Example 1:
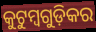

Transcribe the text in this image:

କୁଟୁମ୍ବଗୁଡ଼ିକର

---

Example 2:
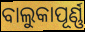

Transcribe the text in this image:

ବାଲୁକାପୂର୍ଣ୍ଣ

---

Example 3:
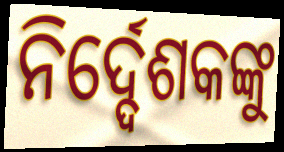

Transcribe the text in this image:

ନିର୍ଦ୍ଦେଶକଙ୍କୁ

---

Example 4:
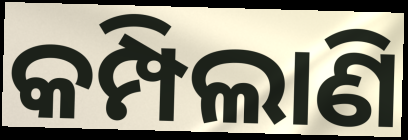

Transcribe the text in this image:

କମ୍ପିଲାଣି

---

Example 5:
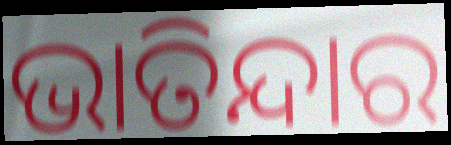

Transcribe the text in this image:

ଭାତିନ୍ଦାର